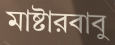
মাষ্টারবাবু